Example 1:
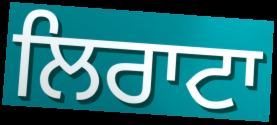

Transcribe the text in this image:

ਲਿਰਾਟਾ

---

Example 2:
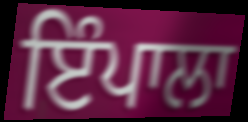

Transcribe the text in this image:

ਇੰਪਾਲਾ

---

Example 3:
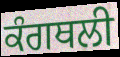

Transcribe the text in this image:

ਕੰਗਥਲੀ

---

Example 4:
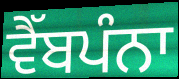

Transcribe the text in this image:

ਵੈੱਬਪੰਨਾ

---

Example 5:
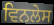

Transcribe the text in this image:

ਵਿਨਲੇਸ